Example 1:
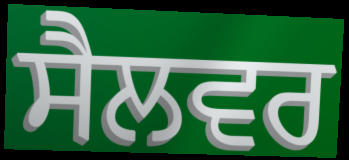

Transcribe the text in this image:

ਸੈਲਵਰ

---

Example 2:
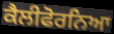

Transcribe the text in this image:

ਕੈਲੀਫੋਰਨਿਆ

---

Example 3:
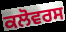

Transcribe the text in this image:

ਕਲੋਵਰਸ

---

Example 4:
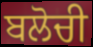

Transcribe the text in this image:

ਬਲੋਚੀ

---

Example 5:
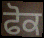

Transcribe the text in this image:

ਫੋਕ